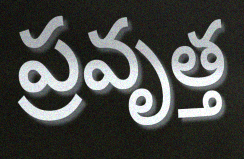
ప్రవృత్త